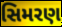
સિમરણ